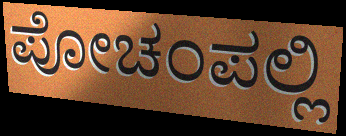
ಪೋಚಂಪಲ್ಲಿ